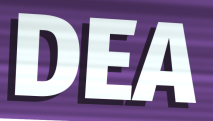
DEA